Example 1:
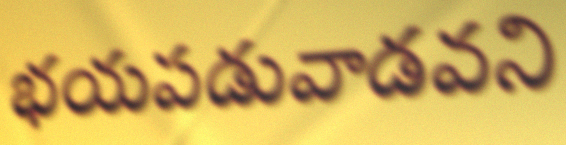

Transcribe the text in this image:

భయపడువాడవని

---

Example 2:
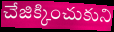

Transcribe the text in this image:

చేజిక్కించుకుని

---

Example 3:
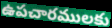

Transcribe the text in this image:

ఉపచారములకు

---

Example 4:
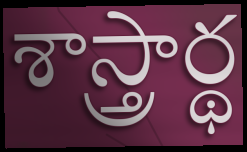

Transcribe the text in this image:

శాస్త్రార్థ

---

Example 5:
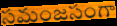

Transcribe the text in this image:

సమంజసంగా